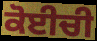
ਕੋਈਚੀ